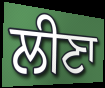
ਲੀਣਾ